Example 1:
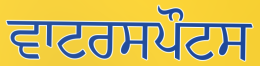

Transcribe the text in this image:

ਵਾਟਰਸਪੌਟਸ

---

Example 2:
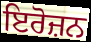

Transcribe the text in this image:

ਇਰੋਜ਼ਨ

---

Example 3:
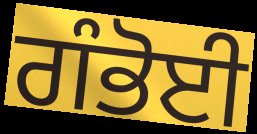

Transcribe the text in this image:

ਗੰਭੋਈ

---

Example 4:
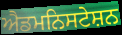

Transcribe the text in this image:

ਐਡਮਨਿਸਟੇਸ਼ਨ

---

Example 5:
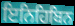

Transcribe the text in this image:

ਇਨਿਹਿਬਿਨ